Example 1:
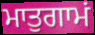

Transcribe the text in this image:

ਮਾਤੁਗਾਮਂ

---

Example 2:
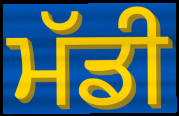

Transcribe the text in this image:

ਮੱਡੀ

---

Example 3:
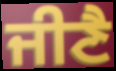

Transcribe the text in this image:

ਜੀਣੈ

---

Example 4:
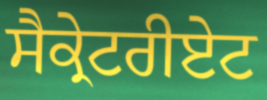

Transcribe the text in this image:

ਸੈਕ੍ਰੇਟਰੀਏਟ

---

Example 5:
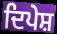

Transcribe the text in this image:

ਦਿਪੇਸ਼